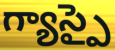
గ్యాస్పై